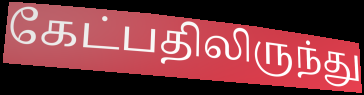
கேட்பதிலிருந்து